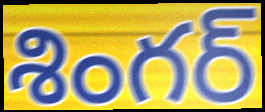
శింగర్